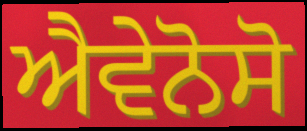
ਐਵੇਨੋਸੋ